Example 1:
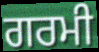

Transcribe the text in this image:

ਗਰਮੀ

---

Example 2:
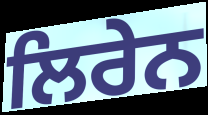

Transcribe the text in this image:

ਲਿਰੇਨ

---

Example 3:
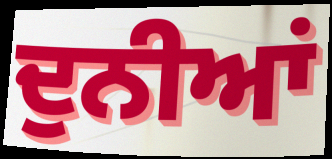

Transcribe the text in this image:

ਦੁਨੀਆਂ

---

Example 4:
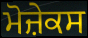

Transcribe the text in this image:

ਮੋਜ਼ੇਕਸ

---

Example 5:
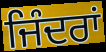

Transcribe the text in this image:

ਜਿੰਦਰਾਂ